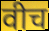
वीच